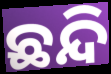
ଛନ୍ଦି